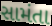
સામંતા